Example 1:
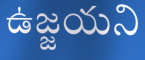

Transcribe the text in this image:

ఉజ్జయని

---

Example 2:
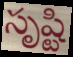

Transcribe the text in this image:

సృష్టి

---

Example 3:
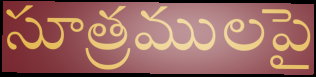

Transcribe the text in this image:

సూత్రములపై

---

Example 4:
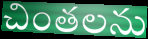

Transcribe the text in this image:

చింతలను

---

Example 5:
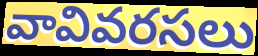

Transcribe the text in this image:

వావివరసలు